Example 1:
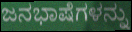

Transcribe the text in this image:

ಜನಭಾಷೆಗಳನ್ನು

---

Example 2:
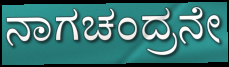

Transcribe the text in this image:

ನಾಗಚಂದ್ರನೇ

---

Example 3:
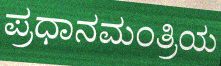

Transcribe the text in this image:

ಪ್ರಧಾನಮಂತ್ರಿಯ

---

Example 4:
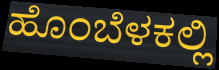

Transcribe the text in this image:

ಹೊಂಬೆಳಕಲ್ಲಿ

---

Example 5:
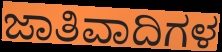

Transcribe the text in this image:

ಜಾತಿವಾದಿಗಳ